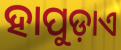
ହାପୁଡ଼ାଏ